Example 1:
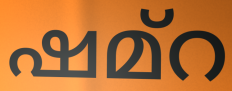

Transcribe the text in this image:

ഷമ്റ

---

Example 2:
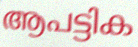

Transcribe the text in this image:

ആപട്ടിക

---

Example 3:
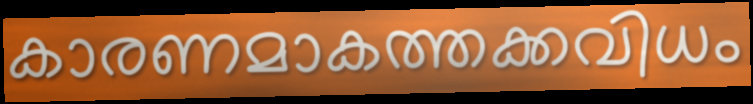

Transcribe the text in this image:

കാരണമാകത്തക്കവിധം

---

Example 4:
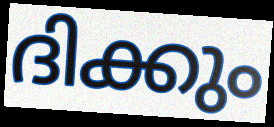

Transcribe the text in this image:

ദിക്കും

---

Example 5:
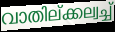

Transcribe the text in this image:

വാതില്ക്കല്വച്ച്